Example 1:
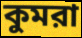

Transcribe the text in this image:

কুমরা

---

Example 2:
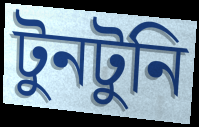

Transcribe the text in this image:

টুনটুনি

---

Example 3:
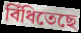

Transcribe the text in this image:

বিঁধিতেছে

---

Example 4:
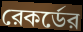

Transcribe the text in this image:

রেকর্ডের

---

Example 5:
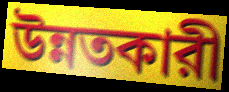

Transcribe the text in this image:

উন্নতকারী